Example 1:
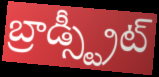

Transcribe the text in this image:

బ్రాడ్స్ట్రీట్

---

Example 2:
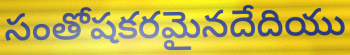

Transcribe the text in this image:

సంతోషకరమైనదేదియు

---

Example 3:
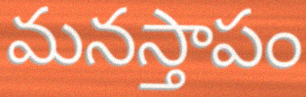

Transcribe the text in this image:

మనస్తాపం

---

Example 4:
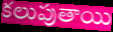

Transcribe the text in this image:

కలుపుతాయి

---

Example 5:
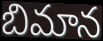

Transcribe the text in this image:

బిమాన